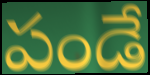
పండే